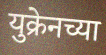
युक्रेनच्या